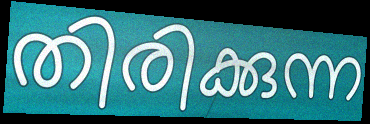
തിരിക്കുന്ന